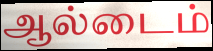
ஆல்டைம்